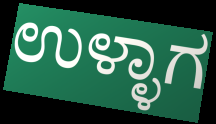
ಉಳ್ಳಾಗ